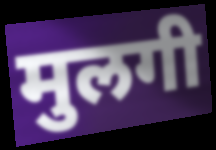
मुलगी